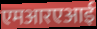
एमआरएआई